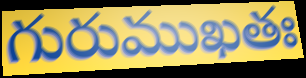
గురుముఖతః